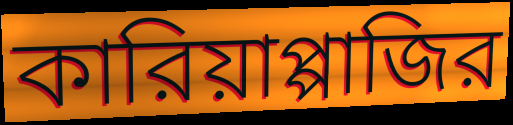
কারিয়াপ্পাজির